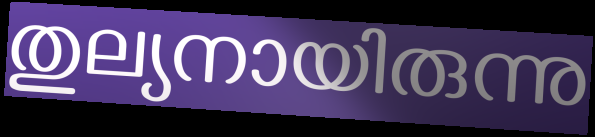
തുല്യനായിരുന്നു